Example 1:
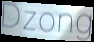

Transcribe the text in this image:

Dzong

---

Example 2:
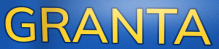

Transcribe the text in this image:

GRANTA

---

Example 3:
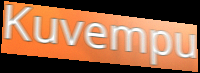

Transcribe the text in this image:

Kuvempu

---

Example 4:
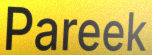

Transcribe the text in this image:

Pareek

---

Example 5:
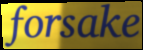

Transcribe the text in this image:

forsake